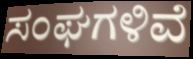
ಸಂಘಗಳಿವೆ